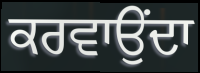
ਕਰਵਾਉਂਦਾ